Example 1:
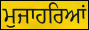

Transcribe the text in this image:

ਮੁਜਾਹਰਿਆਂ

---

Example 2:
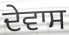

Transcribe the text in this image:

ਦੇਵਾਸ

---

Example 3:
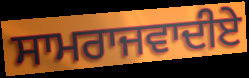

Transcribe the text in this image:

ਸਾਮਰਾਜਵਾਦੀਏ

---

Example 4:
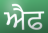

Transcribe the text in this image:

ਐਫ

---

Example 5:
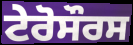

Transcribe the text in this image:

ਟੇਰੋਸੌਰਸ